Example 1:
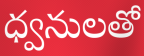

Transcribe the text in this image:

ధ్వనులతో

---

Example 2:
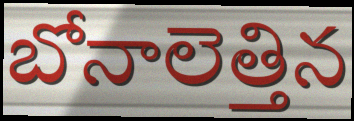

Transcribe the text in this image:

బోనాలెత్తిన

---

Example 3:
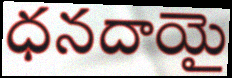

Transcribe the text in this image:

ధనదాయై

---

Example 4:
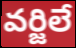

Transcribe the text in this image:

వర్జిలే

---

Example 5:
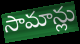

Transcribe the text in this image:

సామాన్లు